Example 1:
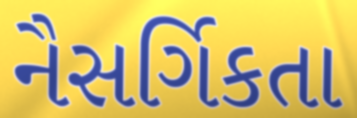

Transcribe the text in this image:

નૈસર્ગિકતા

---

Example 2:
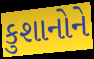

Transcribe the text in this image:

કુશાનોને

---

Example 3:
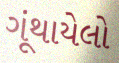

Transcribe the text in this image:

ગૂંથાયેલો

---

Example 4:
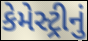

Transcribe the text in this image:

કેમેસ્ટ્રીનું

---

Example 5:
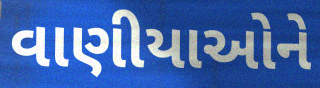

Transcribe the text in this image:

વાણીયાઓને